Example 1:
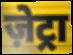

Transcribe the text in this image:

ज़ेट्रा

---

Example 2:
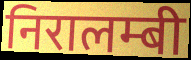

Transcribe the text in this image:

निरालम्बी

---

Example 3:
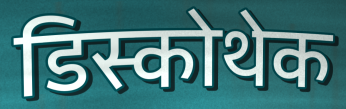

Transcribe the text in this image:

डिस्कोथेक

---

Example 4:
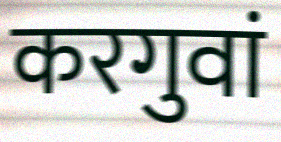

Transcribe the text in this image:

करगुवां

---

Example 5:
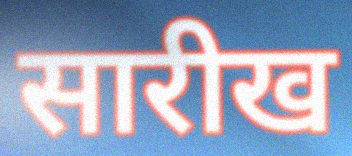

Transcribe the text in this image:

सारीख